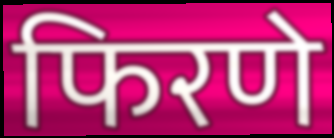
फिरणे